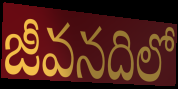
జీవనదిలో